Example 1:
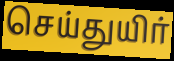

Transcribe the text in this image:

செய்துயிர்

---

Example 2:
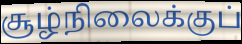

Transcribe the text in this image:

சூழ்நிலைக்குப்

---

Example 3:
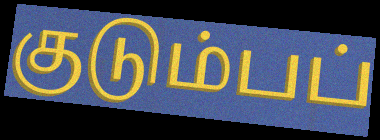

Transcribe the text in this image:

குடும்பப்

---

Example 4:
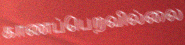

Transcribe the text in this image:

காணப்பெறவில்லை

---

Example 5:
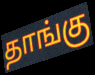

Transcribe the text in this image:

தாங்கு